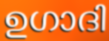
ഉഗാദി